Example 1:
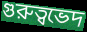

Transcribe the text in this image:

গুরুত্বভেদ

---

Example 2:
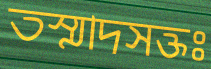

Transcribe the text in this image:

তস্মাদসক্তঃ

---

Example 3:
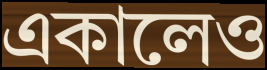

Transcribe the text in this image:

একালেও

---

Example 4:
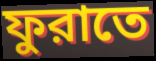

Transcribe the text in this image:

ফুরাতে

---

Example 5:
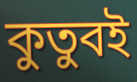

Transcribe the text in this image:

কুতুবই